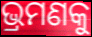
ଭ୍ରମଣକୁ